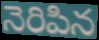
నెరిపిన